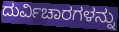
ದುರ್ವಿಚಾರಗಳನ್ನು